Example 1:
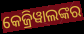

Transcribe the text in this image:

କେଜ୍ରିୱାଲଙ୍କର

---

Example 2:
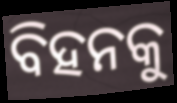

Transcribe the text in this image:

ବିହନକୁ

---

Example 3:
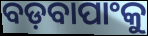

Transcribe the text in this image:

ବଡ଼ବାପାଂକୁ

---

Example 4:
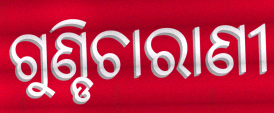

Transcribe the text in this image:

ଗୁଣ୍ଡିଚାରାଣୀ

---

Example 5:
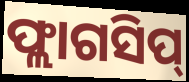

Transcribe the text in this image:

ଫ୍ଲାଗସିପ୍